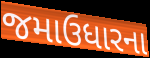
જમાઉધારના